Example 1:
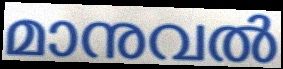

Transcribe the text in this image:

മാനുവൽ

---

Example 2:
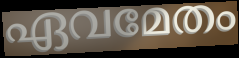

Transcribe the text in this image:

ഏവമേതം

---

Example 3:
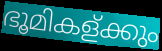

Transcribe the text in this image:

ഭൂമികള്ക്കും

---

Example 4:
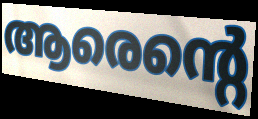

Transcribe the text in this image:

ആരെന്റെ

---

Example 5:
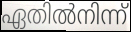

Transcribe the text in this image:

ഏതിൽനിന്ന്